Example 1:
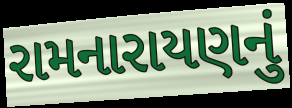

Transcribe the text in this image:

રામનારાયણનું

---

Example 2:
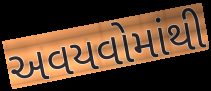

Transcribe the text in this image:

અવયવોમાંથી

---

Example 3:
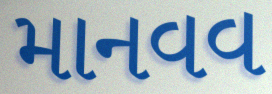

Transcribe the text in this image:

માનવવ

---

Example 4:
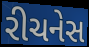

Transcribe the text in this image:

રીચનેસ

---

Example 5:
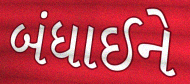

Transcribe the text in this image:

બંધાઈને